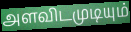
அளவிடமுடியும்